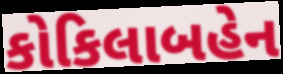
કોકિલાબહેન